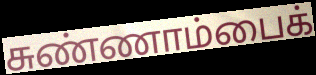
சுண்ணாம்பைக்